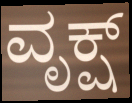
ವೃಕ್ಷ್